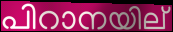
പിറാനയില്